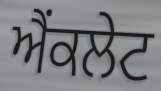
ਐਂਕਲੇਟ